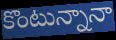
కొంటున్నానా